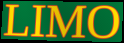
LIMO